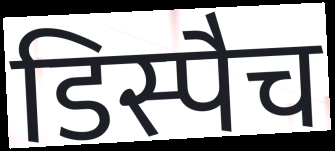
डिस्‍पैच